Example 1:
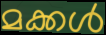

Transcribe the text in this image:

മക്കൾ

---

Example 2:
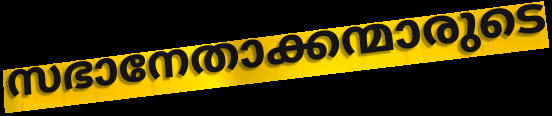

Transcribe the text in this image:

സഭാനേതാക്കന്മാരുടെ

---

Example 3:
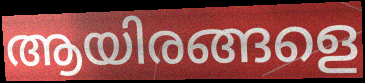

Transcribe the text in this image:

ആയിരങ്ങളെ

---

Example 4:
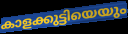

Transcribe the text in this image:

കാളക്കുട്ടിയെയും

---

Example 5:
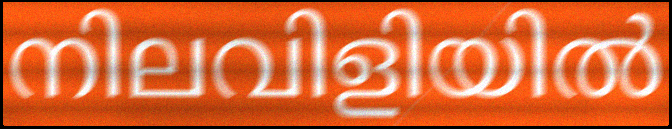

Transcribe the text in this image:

നിലവിളിയിൽ